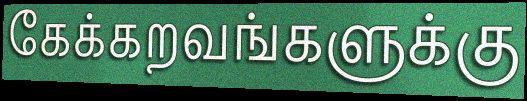
கேக்கறவங்களுக்கு